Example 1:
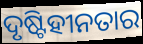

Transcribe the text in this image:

ଦୃଷ୍ଟିହୀନତାର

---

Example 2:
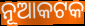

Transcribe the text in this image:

ନୂଆକଟକ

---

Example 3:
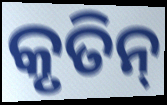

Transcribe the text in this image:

କୃତିନ୍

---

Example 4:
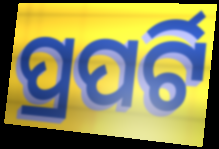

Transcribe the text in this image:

ପ୍ରପର୍ଟି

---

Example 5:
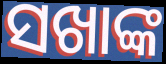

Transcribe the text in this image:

ସଖାଙ୍କ